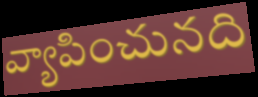
వ్యాపించునది